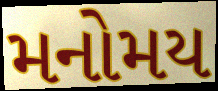
મનોમય